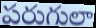
పరుగులా